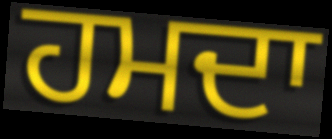
ਹਮਦਾ